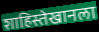
शाहिस्तेखानला